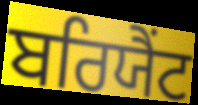
ਬਰਿਯੈਂਟ